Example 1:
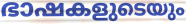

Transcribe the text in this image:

ഭാഷകളുടെയും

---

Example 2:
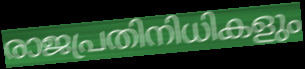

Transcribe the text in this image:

രാജപ്രതിനിധികളും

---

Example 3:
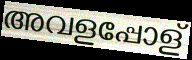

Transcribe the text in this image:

അവളപ്പോള്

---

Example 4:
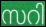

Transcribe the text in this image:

സറി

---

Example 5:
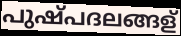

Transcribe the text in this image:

പുഷ്പദലങ്ങള്